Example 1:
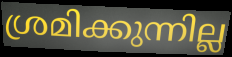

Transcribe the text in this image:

ശ്രമിക്കുന്നില്ല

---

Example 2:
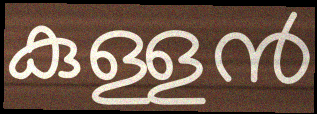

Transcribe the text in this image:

കുള്ളൻ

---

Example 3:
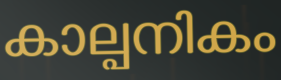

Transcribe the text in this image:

കാല്പനികം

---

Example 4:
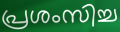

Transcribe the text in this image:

പ്രശംസിച്ച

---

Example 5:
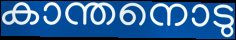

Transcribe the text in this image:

കാന്തനൊടു